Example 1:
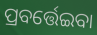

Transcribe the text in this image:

ପ୍ରବର୍ତ୍ତେଇବା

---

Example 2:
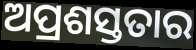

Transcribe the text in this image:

ଅପ୍ରଶସ୍ତତାର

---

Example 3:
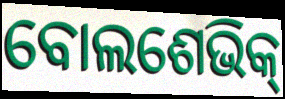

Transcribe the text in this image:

ବୋଲଶେଭିକ୍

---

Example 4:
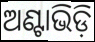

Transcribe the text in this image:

ଅଣ୍ଟାଭିଡ଼ି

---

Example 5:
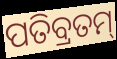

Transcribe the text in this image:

ପତିବ୍ରତମ୍